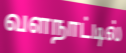
வளநாட்டில்